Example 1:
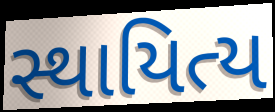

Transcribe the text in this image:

સ્થાયિત્ય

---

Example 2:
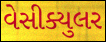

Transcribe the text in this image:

વેસીક્યુલર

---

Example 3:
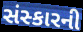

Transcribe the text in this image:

સંસ્કારની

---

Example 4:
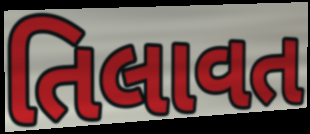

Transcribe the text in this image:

તિલાવત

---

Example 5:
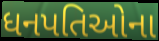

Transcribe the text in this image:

ધનપતિઓના